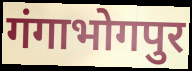
गंगाभोगपुर